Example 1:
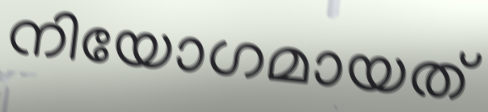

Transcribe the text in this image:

നിയോഗമായത്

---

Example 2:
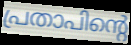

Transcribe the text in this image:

പ്രതാപിന്റെ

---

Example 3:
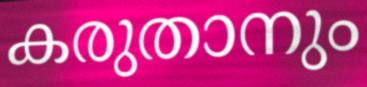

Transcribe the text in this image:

കരുതാനും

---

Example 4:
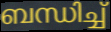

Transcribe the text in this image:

ബന്ധിച്ച്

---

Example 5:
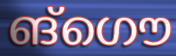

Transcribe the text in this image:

ങ്ഗൌ